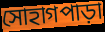
সোহাগপাড়া